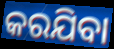
କରଯିବା